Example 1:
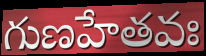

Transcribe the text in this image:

గుణహేతవః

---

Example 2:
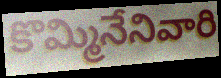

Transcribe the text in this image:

కొమ్మినేనివారి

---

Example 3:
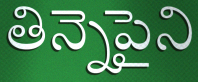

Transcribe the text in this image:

తిన్నెపైని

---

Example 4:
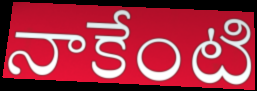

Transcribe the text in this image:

నాకేంటి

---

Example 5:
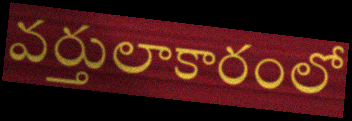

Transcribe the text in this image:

వర్తులాకారంలో